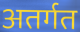
अतर्गत